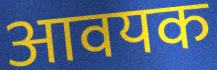
आवयक